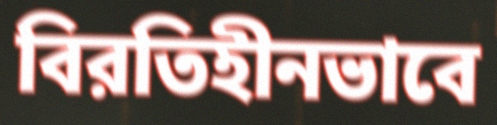
বিরতিহীনভাবে